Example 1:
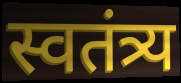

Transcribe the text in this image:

स्वतंत्र्य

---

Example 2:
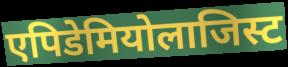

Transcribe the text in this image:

एपिडेमियोलाजिस्ट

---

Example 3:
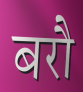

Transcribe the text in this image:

बरौ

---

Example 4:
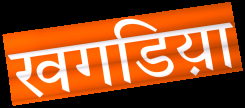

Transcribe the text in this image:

खगडिय़ा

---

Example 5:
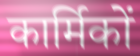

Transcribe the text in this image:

कार्मिकों